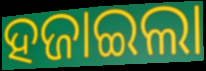
ହଜାଇଲା